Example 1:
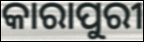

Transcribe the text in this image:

କାରାପୁରୀ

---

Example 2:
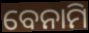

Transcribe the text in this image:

ବେନାମି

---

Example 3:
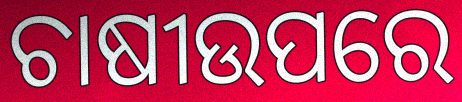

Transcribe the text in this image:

ଚାଷୀଉପରେ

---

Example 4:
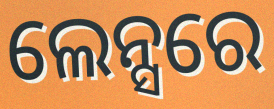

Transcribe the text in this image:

ଲେନ୍ସରେ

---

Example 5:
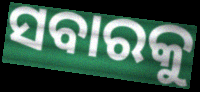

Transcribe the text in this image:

ସବାରକୁ